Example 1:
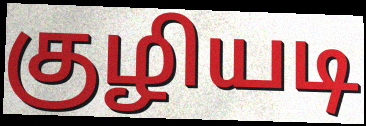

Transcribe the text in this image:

குழியடி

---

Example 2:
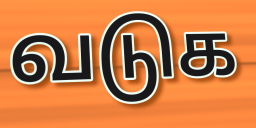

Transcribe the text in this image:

வடுக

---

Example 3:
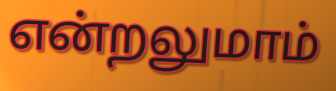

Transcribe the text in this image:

என்றலுமாம்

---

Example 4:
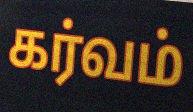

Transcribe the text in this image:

கர்வம்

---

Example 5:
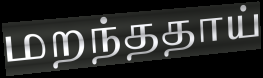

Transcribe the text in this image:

மறந்ததாய்